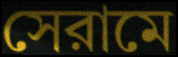
সেরামে